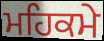
ਮਹਿਕਮੇ